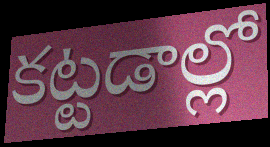
కట్టడాల్లో